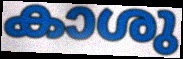
കാശു